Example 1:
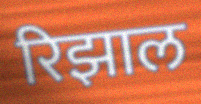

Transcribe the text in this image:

रिझाल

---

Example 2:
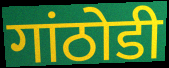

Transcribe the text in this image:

गांठोडी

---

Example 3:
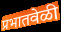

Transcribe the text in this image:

प्रभातवेळी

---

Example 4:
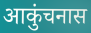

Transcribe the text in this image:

आकुंचनास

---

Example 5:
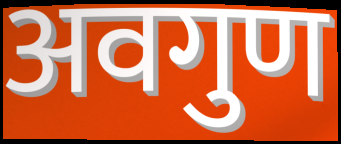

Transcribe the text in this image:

अवगुण